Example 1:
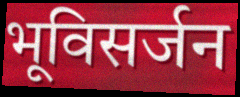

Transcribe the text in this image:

भूविसर्जन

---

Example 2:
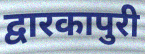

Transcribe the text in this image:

द्वारकापुरी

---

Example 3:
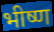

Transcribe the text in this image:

भीष्ण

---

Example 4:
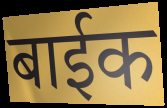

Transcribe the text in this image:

बाईक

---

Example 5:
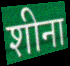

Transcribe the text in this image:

शीना